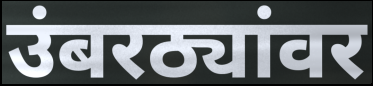
उंबरठ्यांवर